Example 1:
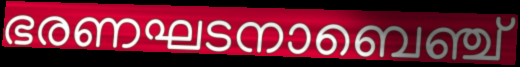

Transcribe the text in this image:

ഭരണഘടനാബെഞ്ച്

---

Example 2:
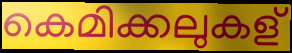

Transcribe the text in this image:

കെമിക്കലുകള്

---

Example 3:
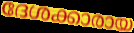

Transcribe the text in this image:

ദേശക്കാരായ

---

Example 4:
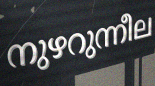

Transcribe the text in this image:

നുഴറുന്നീല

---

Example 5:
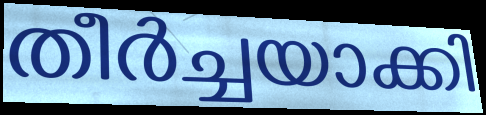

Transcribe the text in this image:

തീർച്ചയാക്കി